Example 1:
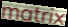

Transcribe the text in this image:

matrix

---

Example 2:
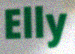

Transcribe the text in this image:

Elly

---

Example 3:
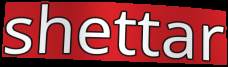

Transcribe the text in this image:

shettar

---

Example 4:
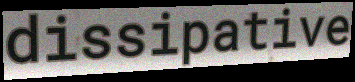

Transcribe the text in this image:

dissipative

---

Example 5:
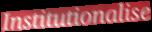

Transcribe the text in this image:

Institutionalise